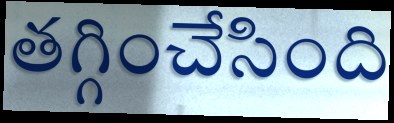
తగ్గించేసింది